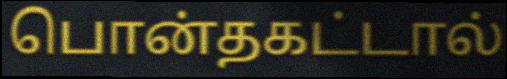
பொன்தகட்டால்